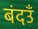
बंदउँ